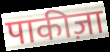
पाकीज़ा